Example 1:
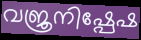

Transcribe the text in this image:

വജ്രനിഷ്പേഷ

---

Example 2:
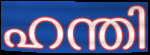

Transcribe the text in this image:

ഹന്തി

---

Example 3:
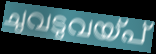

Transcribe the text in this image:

ചുവടുവയ്പ്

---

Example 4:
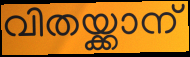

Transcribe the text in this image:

വിതയ്ക്കാന്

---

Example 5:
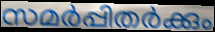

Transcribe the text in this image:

സമർപ്പിതർക്കും